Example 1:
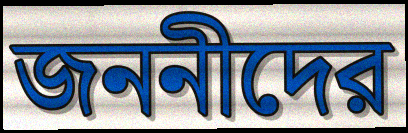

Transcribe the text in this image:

জননীদের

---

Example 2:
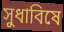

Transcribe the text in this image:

সুধাবিষে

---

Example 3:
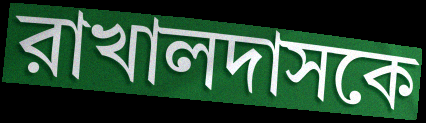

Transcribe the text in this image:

রাখালদাসকে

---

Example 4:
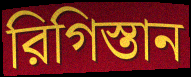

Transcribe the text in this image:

রিগিস্তান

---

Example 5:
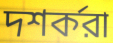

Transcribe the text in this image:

দশর্করা